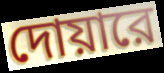
দোয়ারে